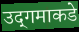
उद्‌गमाकडे